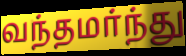
வந்தமர்ந்து